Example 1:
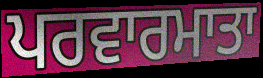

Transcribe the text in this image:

ਪਰਵਾਰਮਾਤਾ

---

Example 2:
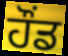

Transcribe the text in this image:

ਹੌਂਡ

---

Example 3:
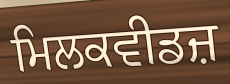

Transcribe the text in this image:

ਮਿਲਕਵੀਡਜ਼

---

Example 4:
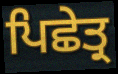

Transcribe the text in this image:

ਪਿਛੇਤ੍ਰ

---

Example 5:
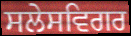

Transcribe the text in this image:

ਸਲੇਸਵਿਗਰ